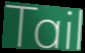
Tail